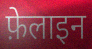
फ़ेलाइन